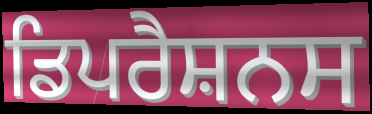
ਡਿਪਰੈਸ਼ਨਸ